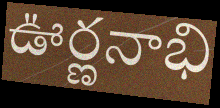
ఊర్ణనాభి